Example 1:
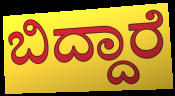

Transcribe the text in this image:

ಬಿದ್ದಾರೆ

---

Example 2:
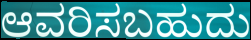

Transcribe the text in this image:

ಆವರಿಸಬಹುದು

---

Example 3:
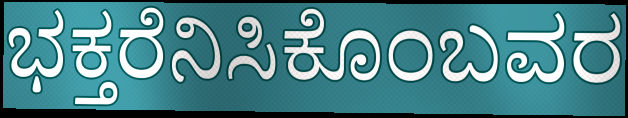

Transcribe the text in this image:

ಭಕ್ತರೆನಿಸಿಕೊಂಬವರ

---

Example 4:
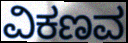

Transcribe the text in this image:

ವಿಕಣವ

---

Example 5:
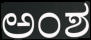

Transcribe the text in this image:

ಅಂಶ